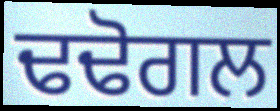
ਢਢੋਗਲ